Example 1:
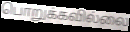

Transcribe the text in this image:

பொறுக்கவில்லை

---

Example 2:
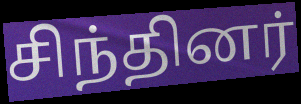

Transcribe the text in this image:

சிந்தினர்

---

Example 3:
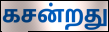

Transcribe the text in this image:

கசன்றது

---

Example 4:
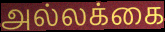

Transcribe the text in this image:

அல்லக்கை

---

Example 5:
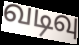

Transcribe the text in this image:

வடிவு